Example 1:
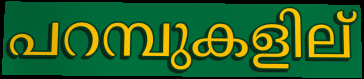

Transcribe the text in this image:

പറമ്പുകളില്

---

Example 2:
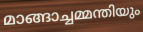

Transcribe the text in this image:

മാങ്ങാച്ചമ്മന്തിയും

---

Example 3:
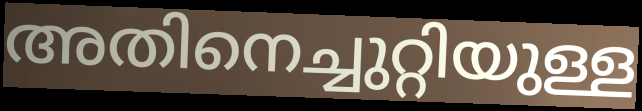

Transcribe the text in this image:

അതിനെച്ചുറ്റിയുള്ള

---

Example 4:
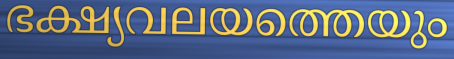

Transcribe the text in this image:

ഭക്ഷ്യവലയത്തെയും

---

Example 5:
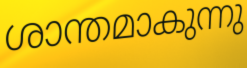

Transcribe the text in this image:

ശാന്തമാകുന്നു